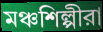
মঞ্চশিল্পীরা